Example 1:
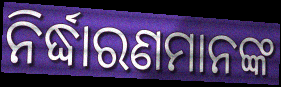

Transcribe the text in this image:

ନିର୍ଦ୍ଧାରଣମାନଙ୍କ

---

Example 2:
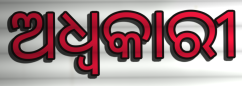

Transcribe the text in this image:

ଅଧ୍ବକାରୀ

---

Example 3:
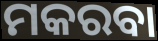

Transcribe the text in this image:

ମକରବା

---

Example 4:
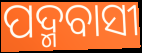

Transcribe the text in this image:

ପଦ୍ମବାସୀ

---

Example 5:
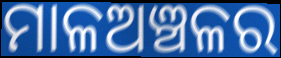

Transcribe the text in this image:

ମାଳଅଞ୍ଚଳର